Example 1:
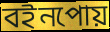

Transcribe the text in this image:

বইনপোয়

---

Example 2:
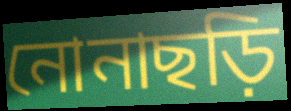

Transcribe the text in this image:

নোনাছড়ি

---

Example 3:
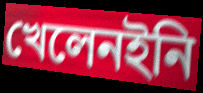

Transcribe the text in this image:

খেলেনইনি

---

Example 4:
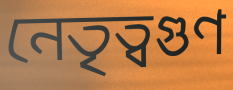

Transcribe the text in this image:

নেতৃত্বগুণ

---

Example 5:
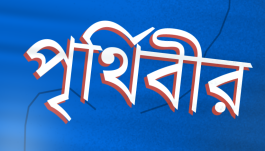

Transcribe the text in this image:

পৃর্থিবীর